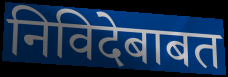
निविदेबाबत